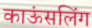
काऊंसलिंग